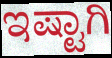
ಇಷ್ಟಾಗಿ